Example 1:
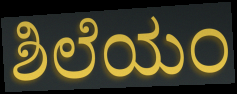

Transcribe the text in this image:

ಶಿಲೆಯಂ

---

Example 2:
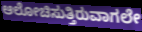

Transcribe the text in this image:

ಆಲೋಚಿಸುತ್ತಿರುವಾಗಲೇ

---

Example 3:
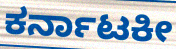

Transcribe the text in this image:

ಕರ್ನಾಟಕೀ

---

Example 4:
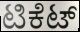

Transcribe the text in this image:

ಟಿಕೆಟ್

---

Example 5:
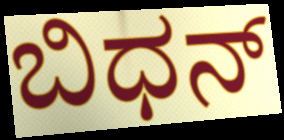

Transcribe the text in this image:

ಬಿಧನ್